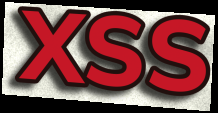
XSS